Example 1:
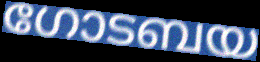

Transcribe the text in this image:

ഗോടബയ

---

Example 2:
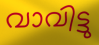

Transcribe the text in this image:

വാവിട്ടു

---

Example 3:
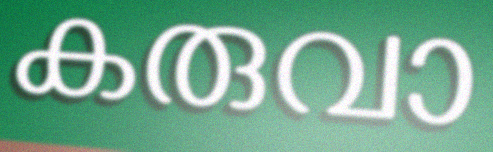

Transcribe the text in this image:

കരുവാ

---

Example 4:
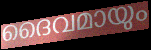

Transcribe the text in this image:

ദൈവമായും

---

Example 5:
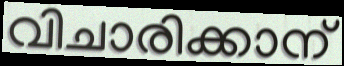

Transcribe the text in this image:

വിചാരിക്കാന്